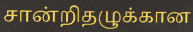
சான்றிதழுக்கான